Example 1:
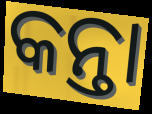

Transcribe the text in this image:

କନ୍ତା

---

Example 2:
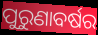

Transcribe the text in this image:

ପୁରୁଣାବର୍ଷର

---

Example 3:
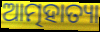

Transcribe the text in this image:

ଆତ୍ମହାତ୍ୟା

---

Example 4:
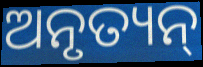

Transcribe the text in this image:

ଅନୃତ୍ୟନ୍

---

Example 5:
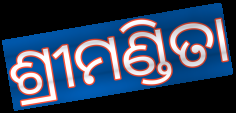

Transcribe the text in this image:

ଶ୍ରୀମଣ୍ଡିତା